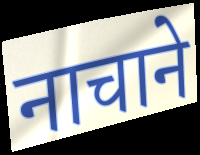
नाचाने